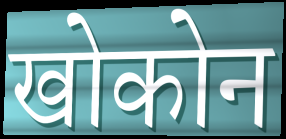
खोकोन